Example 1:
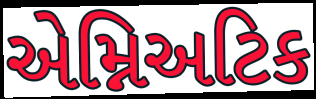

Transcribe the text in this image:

એમ્નિઅટિક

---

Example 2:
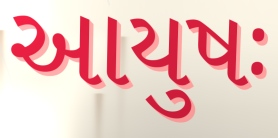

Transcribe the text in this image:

આયુષઃ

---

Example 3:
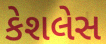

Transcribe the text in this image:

કેશલેસ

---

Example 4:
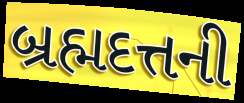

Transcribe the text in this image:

બ્રહ્મદત્તની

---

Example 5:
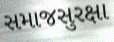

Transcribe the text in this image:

સમાજસુરક્ષા